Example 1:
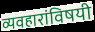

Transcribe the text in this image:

व्यवहारांविषयी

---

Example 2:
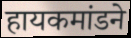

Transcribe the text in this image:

हायकमांडने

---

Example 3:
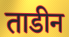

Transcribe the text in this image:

ताडीन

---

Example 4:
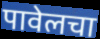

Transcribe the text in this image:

पावेलचा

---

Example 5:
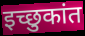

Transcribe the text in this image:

इच्छुकांत